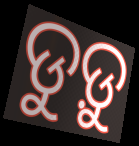
ଡୁଡ଼ୁ